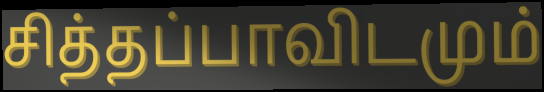
சித்தப்பாவிடமும்